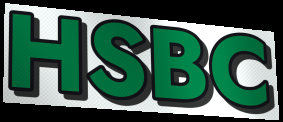
HSBC